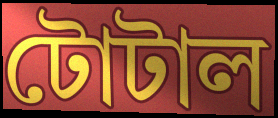
টোটাল